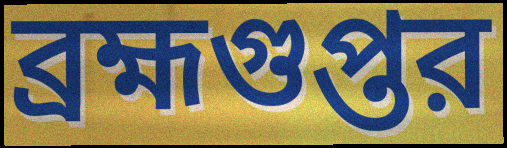
ব্রহ্মগুপ্তর